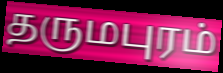
தருமபுரம்